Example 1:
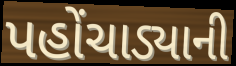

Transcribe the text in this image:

પહોંચાડ્યાની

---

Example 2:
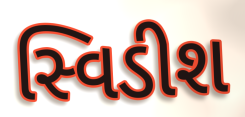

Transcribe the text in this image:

સ્વિડીશ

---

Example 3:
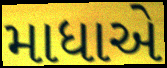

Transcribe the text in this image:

માધાએ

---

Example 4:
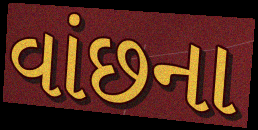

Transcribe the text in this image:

વાંછના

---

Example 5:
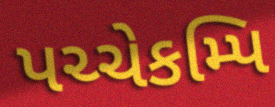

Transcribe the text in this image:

પચ્ચેકમ્પિ